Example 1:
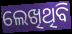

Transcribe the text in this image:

ଲେଖିଥିବି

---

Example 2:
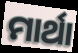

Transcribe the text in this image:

ମାର୍ଥା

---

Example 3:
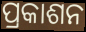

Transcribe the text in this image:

ପ୍ରକାଶନ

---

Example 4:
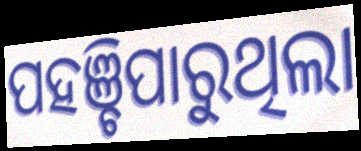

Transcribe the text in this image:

ପହଞ୍ଚିପାରୁଥିଲା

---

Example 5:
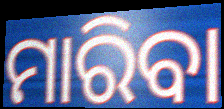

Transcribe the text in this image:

ମାରିବା